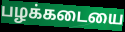
பழக்கடையை